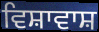
ਵਿਸ਼ਾਵਾਸ਼